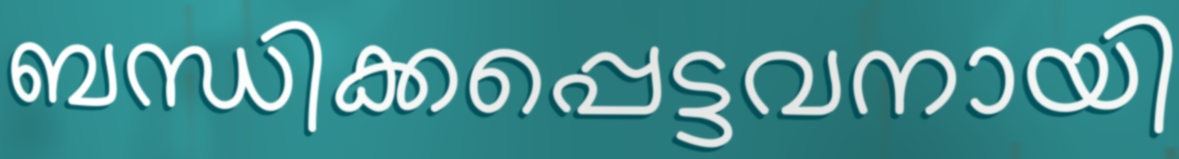
ബന്ധിക്കപ്പെട്ടവനായി